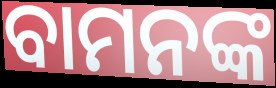
ବାମନଙ୍କ